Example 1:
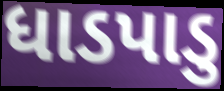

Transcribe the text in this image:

ધાડપાડુ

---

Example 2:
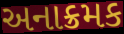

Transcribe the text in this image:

અનાક્રમક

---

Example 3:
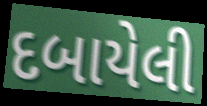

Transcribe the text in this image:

દબાયેલી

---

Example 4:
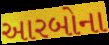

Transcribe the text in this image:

આરબોના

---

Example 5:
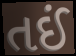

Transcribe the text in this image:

તઈં